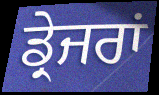
ਡ੍ਰੇਜਰਾਂ